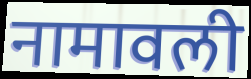
नामावली